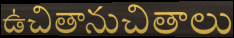
ఉచితానుచితాలు